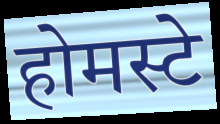
होमस्टे